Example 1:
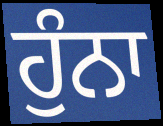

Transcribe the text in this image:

ਹੁੰਨਾ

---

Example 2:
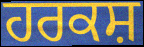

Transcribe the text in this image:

ਹਰਕਸ਼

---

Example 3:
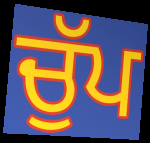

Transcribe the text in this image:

ਚੁੱਪ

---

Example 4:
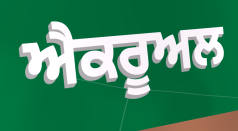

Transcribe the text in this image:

ਐਕਰੂਅਲ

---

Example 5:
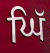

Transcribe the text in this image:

ਘਿੱ